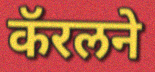
कॅरलने